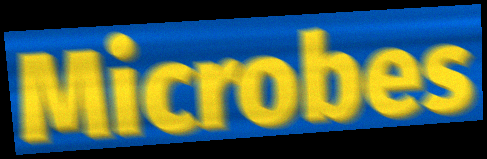
Microbes